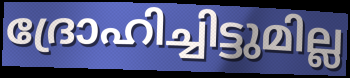
ദ്രോഹിച്ചിട്ടുമില്ല